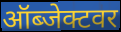
ऑब्जेक्टवर